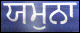
ਯਮੁਨਾ